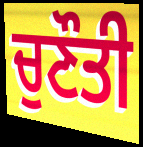
ਚੁਣੌਤੀ